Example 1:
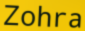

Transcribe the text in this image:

Zohra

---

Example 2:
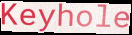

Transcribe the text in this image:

Keyhole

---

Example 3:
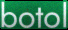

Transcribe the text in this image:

botol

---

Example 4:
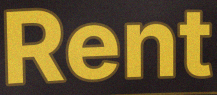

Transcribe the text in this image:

Rent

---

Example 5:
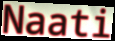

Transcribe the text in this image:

Naati